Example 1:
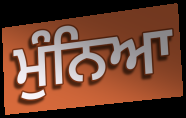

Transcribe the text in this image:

ਮੁੰਨਿਆ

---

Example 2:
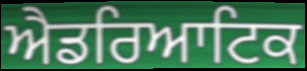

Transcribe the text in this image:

ਐਡਰਿਆਟਿਕ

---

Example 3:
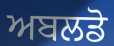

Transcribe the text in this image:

ਅਬਲਡੋ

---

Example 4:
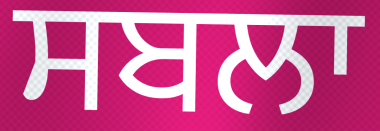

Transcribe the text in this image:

ਸਬਲਾ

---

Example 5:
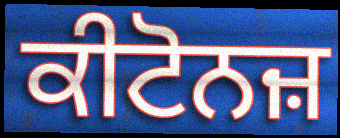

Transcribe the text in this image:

ਕੀਟੋਨਜ਼